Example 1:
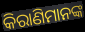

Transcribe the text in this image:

କିରାଣିମାନଙ୍କ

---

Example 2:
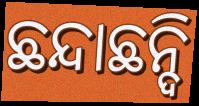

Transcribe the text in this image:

ଛନ୍ଦାଛନ୍ଦି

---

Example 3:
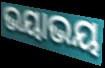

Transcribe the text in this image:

ଭୟାଭୟ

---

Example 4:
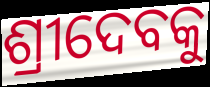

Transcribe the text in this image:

ଶ୍ରୀଦେବକୁ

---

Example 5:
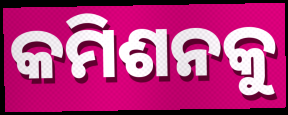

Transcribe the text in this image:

କମିଶନକୁ